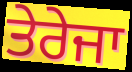
ਤੇਰੇਜਾ